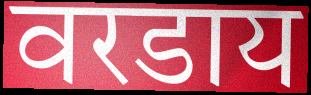
वरडाय